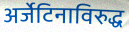
अर्जेटिनाविरुद्ध